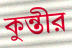
কুন্তীর